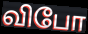
விபோ